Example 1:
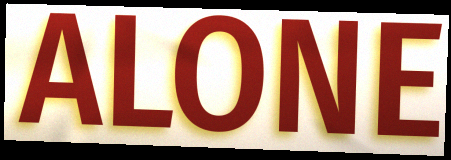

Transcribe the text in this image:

ALONE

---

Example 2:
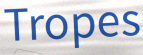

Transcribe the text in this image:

Tropes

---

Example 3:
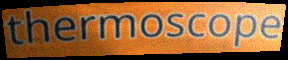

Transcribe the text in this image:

thermoscope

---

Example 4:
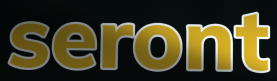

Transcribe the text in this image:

seront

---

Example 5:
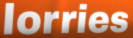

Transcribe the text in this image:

lorries